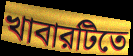
খাবারটিতে